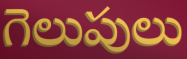
గెలుపులు